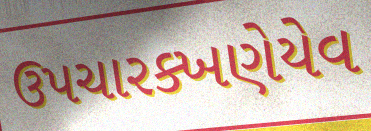
ઉપચારક્ખણેયેવ